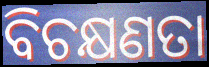
ବିଚକ୍ଷଣତା